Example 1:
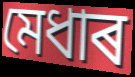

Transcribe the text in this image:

মেধাৰ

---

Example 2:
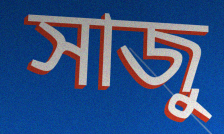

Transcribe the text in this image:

সাজু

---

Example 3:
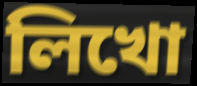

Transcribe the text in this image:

লিখো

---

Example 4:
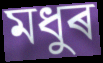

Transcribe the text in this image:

মধুৰ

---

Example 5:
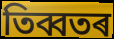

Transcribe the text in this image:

তিব্বতৰ